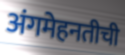
अंगमेहनतीची